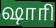
ஷாரி